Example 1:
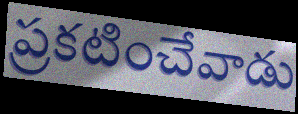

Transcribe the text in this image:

ప్రకటించేవాడు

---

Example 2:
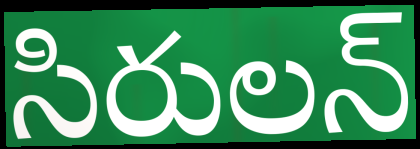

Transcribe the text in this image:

సిరులన్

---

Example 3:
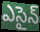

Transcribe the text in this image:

ఎసైన్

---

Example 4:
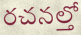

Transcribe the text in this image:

రచనల్తో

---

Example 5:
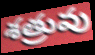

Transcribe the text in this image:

శత్రువు